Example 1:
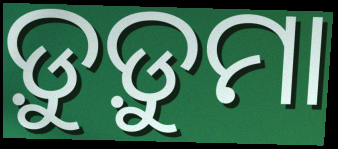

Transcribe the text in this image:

ଡ଼ୁଡ଼ୁମା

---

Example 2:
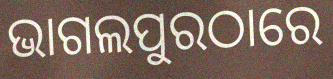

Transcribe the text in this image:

ଭାଗଲପୁରଠାରେ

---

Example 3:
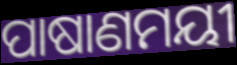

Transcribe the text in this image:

ପାଷାଣମୟୀ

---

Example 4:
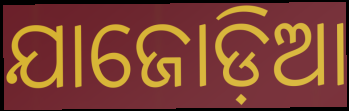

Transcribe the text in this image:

ଯାଜୋଡ଼ିଆ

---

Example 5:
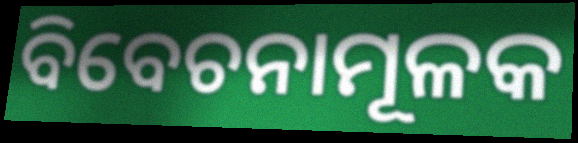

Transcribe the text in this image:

ବିବେଚନାମୂଳକ